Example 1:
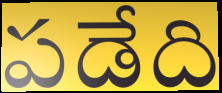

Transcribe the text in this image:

పడేది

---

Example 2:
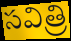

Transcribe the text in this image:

సవిత్రి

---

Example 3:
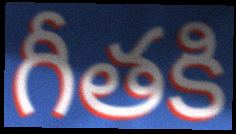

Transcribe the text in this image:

గీతకి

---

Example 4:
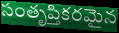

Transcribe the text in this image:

సంతృప్తికరమైన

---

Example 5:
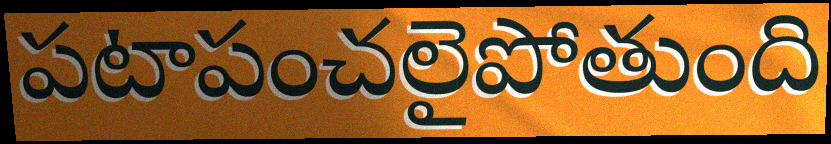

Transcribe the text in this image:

పటాపంచలైపోతుంది